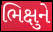
ભિક્ષુને